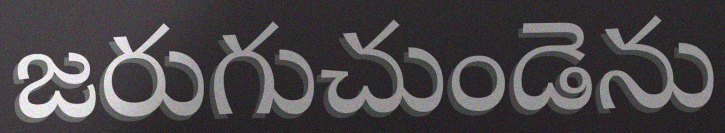
జరుగుచుండెను